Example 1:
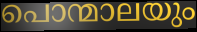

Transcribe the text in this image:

പൊന്മാലയും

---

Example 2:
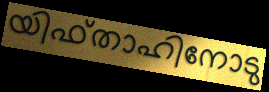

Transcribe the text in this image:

യിഫ്താഹിനോടു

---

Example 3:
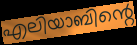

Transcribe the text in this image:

എലിയാബിന്റെ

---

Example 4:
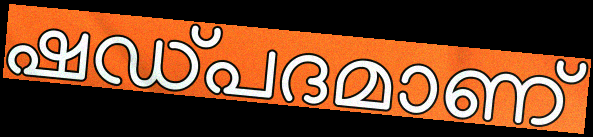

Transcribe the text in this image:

ഷഡ്പദമാണ്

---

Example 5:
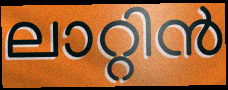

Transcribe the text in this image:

ലാറ്റിൻ